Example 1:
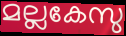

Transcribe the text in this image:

മല്ലകേസു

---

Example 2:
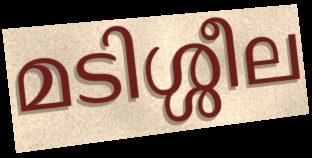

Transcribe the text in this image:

മടിശ്ശീല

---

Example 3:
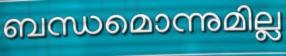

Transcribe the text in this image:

ബന്ധമൊന്നുമില്ല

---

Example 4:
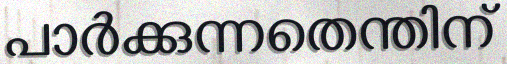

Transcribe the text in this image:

പാർക്കുന്നതെന്തിന്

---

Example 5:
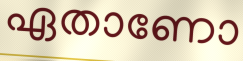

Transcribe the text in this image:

ഏതാണോ